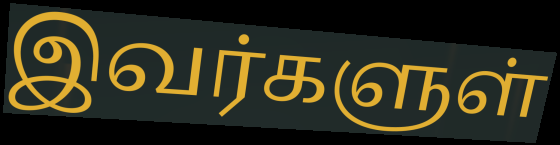
இவர்களுள்